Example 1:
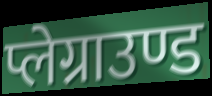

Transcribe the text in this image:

प्लेग्राउण्ड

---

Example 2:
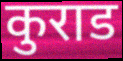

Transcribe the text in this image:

कुराड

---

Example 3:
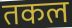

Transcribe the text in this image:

तकल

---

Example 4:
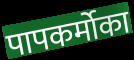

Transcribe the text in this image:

पापकर्मोका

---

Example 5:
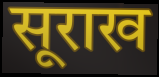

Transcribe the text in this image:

सूराख